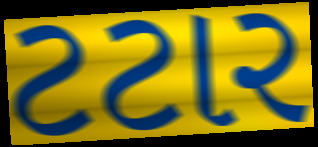
ટટાર